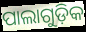
ପାଲାଗୁଡ଼ିକ